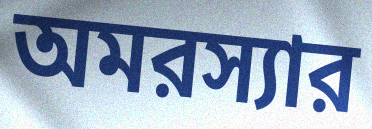
অমরস্যার